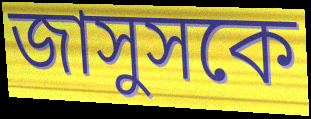
জাসুসকে